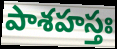
పాశహస్తః